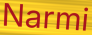
Narmi